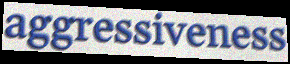
aggressiveness